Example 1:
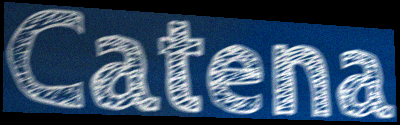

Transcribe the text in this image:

Catena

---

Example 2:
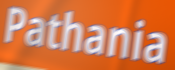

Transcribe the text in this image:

Pathania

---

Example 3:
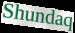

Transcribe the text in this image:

Shundaq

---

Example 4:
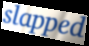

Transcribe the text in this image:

slapped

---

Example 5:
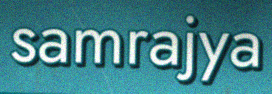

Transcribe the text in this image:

samrajya